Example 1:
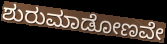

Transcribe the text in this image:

ಶುರುಮಾಡೋಣವೇ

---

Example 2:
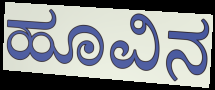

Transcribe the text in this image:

ಹೂವಿನ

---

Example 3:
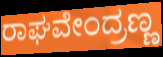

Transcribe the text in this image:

ರಾಘವೇಂದ್ರಣ್ಣ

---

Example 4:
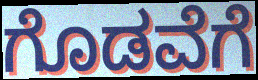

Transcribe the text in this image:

ಗೊಡವೆಗೆ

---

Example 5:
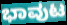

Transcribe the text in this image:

ಭಾವುಟ